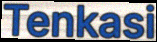
Tenkasi